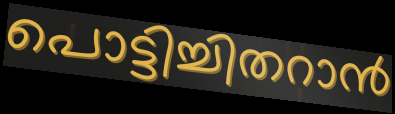
പൊട്ടിച്ചിതറാൻ